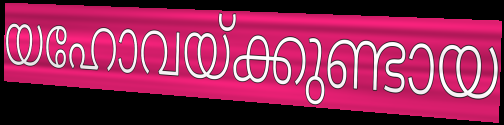
യഹോവയ്ക്കുണ്ടായ